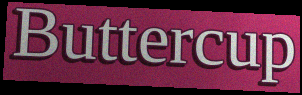
Buttercup